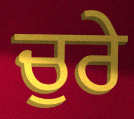
ਚੁਰੇ